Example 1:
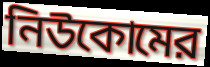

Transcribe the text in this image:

নিউকোমের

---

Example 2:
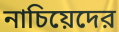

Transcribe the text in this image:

নাচিয়েদের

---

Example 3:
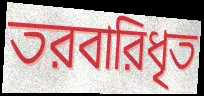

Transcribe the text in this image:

তরবারিধৃত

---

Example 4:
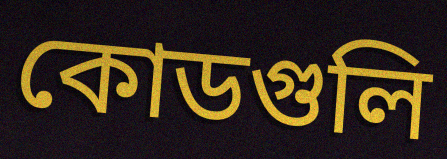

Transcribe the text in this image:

কোডগুলি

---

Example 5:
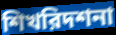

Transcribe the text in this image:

শিখরিদশনা